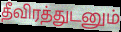
தீவிரத்துடனும்